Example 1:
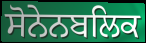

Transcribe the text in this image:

ਸੋਨੇਨਬਲਿਕ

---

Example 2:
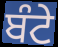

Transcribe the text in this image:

ਬੰਟੇ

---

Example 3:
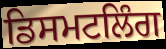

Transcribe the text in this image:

ਡਿਸਮਟਲਿੰਗ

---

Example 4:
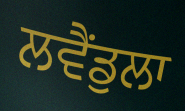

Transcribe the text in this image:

ਲਵੈਂਡੁਲਾ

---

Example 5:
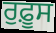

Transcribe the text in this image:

ਰੁਫ਼ੂਸ